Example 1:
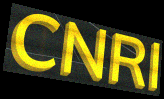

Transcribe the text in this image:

CNRI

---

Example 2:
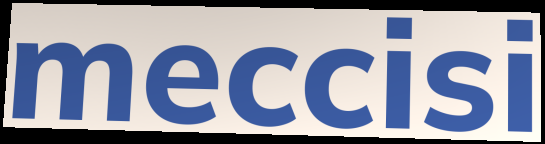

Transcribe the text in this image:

meccisi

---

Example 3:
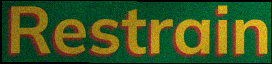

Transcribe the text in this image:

Restrain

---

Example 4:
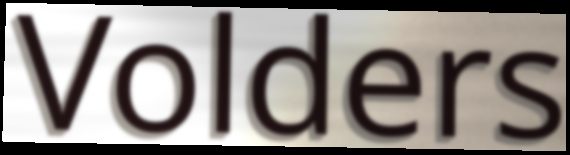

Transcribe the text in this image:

Volders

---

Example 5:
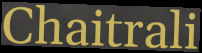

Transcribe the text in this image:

Chaitrali